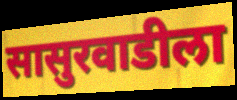
सासुरवाडीला